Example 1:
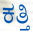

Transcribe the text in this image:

ಕತ್ತಿ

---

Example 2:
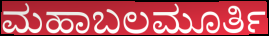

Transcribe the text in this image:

ಮಹಾಬಲಮೂರ್ತಿ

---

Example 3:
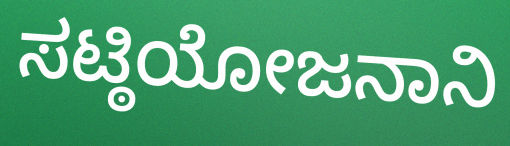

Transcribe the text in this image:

ಸಟ್ಠಿಯೋಜನಾನಿ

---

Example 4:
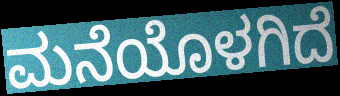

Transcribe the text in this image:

ಮನೆಯೊಳಗಿದೆ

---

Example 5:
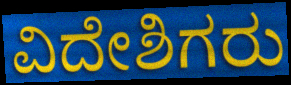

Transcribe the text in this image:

ವಿದೇಶಿಗರು